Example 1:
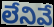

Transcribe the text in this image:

లేనివే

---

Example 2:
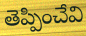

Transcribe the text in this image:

తెప్పించేవి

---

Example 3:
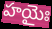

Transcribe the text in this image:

హయైః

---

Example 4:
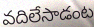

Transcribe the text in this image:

వదిలేసాడంట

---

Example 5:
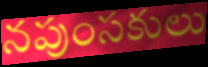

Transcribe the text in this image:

నపుంసకులు